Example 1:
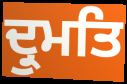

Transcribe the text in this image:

ਦ੍ਰੁਮਤਿ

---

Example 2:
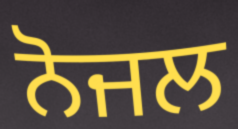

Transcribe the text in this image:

ਨੋਜਲ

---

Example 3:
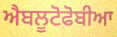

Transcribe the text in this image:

ਐਬਲੂਟੋਫੋਬੀਆ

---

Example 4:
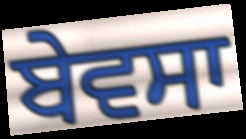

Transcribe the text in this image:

ਬੇਵਸਾ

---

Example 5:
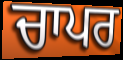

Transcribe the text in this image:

ਚਾਪਰ